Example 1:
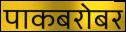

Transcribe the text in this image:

पाकबरोबर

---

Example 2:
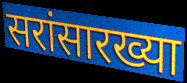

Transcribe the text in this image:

सरांसारख्या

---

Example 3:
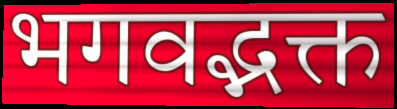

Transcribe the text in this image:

भगवद्भक्त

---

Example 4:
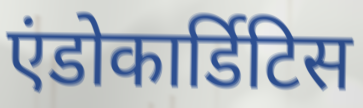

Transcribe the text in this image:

एंडोकार्डिटिस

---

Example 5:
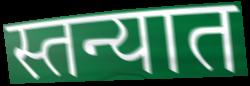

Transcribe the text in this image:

स्तन्यात